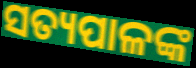
ସତ୍ୟପାଳଙ୍କ